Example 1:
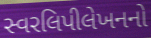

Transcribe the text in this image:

સ્વરલિપીલેખનનો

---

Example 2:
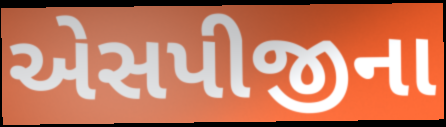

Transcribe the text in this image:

એસપીજીના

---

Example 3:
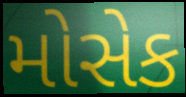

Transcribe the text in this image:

મોસેક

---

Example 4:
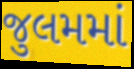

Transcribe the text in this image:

જુલમમાં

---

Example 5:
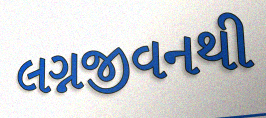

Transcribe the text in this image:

લગ્નજીવનથી